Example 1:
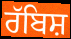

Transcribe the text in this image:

ਰੱਬਿਸ਼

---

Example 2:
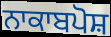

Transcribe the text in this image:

ਨਾਕਾਬਪੋਸ਼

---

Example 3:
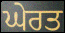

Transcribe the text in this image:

ਘੇਰਤ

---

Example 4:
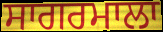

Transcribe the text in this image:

ਸਾਗਰਮਾਲਾ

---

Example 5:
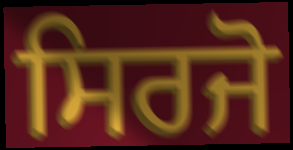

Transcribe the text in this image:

ਸਿਰਜੋ